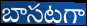
బాసటగా